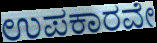
ಉಪಕಾರವೇ